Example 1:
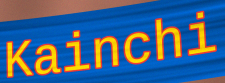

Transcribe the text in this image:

Kainchi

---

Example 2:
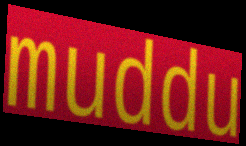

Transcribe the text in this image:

muddu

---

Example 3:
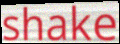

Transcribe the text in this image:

shake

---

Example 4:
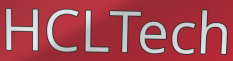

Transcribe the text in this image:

HCLTech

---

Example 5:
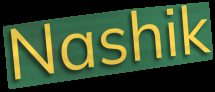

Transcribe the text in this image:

Nashik